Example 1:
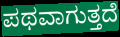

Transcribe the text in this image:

ಪಥವಾಗುತ್ತದೆ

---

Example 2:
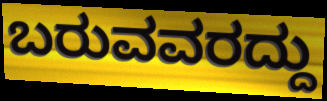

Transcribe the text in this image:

ಬರುವವರದ್ದು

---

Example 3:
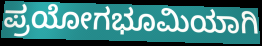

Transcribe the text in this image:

ಪ್ರಯೋಗಭೂಮಿಯಾಗಿ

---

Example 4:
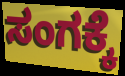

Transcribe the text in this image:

ಸಂಗಕ್ಕೆ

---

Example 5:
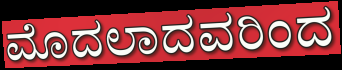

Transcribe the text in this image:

ಮೊದಲಾದವರಿಂದ